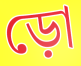
ড়ো